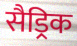
सैड्रिक